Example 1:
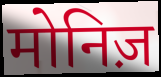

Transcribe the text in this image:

मोनिज़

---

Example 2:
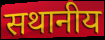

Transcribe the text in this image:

सथानीय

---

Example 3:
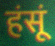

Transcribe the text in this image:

हंसूं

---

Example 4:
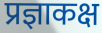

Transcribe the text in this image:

प्रज्ञाकक्ष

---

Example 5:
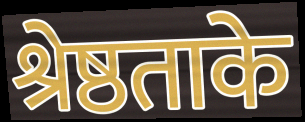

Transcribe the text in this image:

श्रेष्ठताके